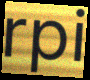
rpi